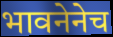
भावनेनेच